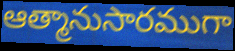
ఆత్మానుసారముగా